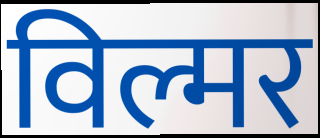
विल्मर